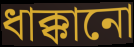
ধাক্কানো